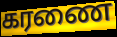
கரணை